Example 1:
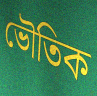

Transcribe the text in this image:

ভৌতিক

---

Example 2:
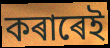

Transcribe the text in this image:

কৰাৰেই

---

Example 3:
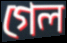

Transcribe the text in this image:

গেল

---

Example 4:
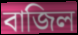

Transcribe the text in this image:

বাজিল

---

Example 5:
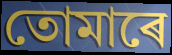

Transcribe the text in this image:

তোমাৰে